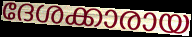
ദേശക്കാരായ